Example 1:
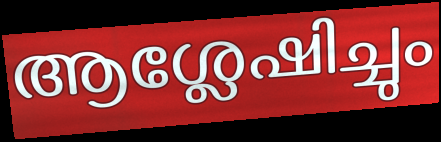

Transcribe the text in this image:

ആശ്ലേഷിച്ചും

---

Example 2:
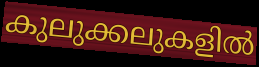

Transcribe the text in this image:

കുലുക്കലുകളിൽ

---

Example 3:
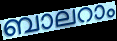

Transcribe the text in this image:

ബാലറാം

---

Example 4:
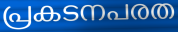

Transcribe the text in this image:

പ്രകടനപരത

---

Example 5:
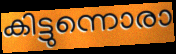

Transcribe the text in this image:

കിട്ടുന്നൊരാ